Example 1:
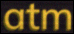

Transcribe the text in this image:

atm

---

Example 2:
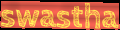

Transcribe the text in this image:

swastha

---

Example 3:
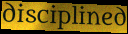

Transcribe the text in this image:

disciplined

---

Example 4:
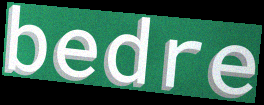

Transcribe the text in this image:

bedre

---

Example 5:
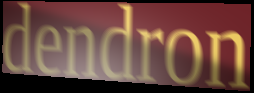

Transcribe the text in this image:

dendron